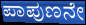
ಪಾಪುಣನೇ